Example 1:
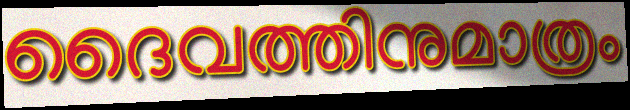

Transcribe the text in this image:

ദൈവത്തിനുമാത്രം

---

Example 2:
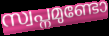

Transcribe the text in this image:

സ്വപ്നമുണ്ടോ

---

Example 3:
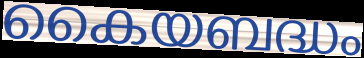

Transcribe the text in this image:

കൈയബദ്ധം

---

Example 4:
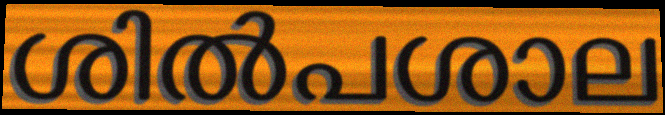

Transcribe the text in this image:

ശിൽപശാല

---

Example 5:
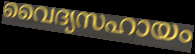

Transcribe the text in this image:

വൈദ്യസഹായം